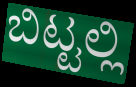
ಬಿಟ್ಟಲ್ಲಿ